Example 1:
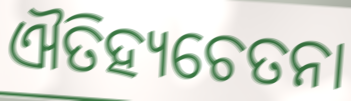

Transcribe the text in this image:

ଐତିହ୍ୟଚେତନା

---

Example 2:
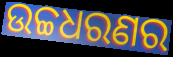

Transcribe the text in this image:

ଉଚ୍ଚଧରଣର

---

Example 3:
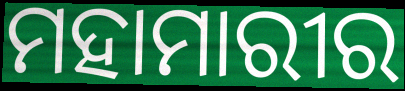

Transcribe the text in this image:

ମହାମାରୀର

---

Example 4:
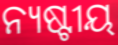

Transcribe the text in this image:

ନ୍ୟଷ୍ଟୀୟ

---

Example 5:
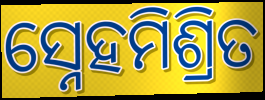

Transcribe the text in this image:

ସ୍ନେହମିଶ୍ରିତ